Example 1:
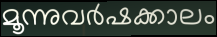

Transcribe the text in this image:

മൂന്നുവർഷക്കാലം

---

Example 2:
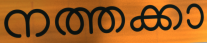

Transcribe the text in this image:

നത്തക്കാ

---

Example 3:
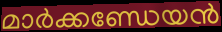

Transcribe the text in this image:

മാർക്കണ്ഡേയൻ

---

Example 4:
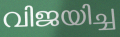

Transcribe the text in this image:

വിജയിച്ച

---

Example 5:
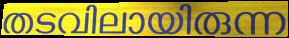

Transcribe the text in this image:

തടവിലായിരുന്ന